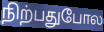
நிற்பதுபோல